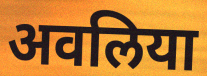
अवलिया